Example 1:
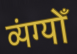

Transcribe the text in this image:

व्यंग्योँ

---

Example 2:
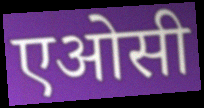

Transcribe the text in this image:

एओसी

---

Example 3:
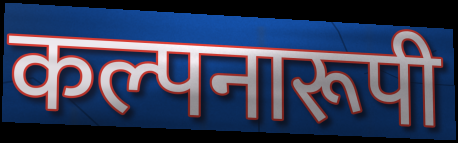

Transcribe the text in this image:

कल्पनारूपी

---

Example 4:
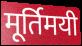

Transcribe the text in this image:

मूर्तिमयी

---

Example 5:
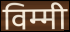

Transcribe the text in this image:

विम्मी